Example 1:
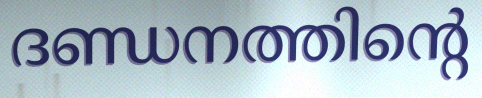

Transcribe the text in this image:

ദണ്ഡനത്തിന്റെ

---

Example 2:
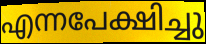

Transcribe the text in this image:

എന്നപേക്ഷിച്ചു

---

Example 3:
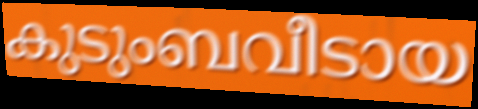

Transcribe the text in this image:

കുടുംബവീടായ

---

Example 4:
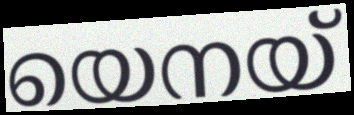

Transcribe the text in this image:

യെനയ്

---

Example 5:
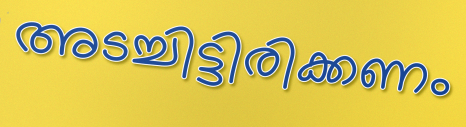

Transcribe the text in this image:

അടച്ചിട്ടിരിക്കണം